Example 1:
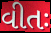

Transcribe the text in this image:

વીતઃ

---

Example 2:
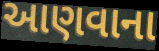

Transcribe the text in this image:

આણવાના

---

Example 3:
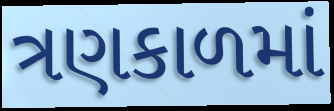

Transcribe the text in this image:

ત્રણકાળમાં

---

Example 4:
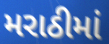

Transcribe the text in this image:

મરાઠીમાં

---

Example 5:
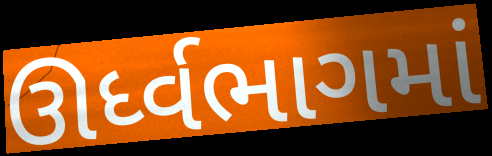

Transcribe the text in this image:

ઊર્ધ્વભાગમાં